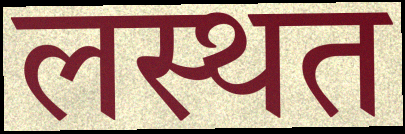
लस्थत